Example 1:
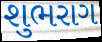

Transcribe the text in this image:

શુભરાગ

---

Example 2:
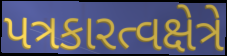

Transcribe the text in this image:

પત્રકારત્વક્ષેત્રે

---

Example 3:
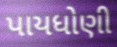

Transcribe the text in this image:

પાયધોણી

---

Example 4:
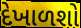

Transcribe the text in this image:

દેખાળશો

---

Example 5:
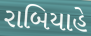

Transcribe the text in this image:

રાબિયાહે